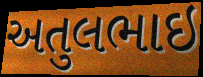
અતુલભાઇ